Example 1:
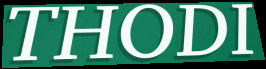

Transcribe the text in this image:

THODI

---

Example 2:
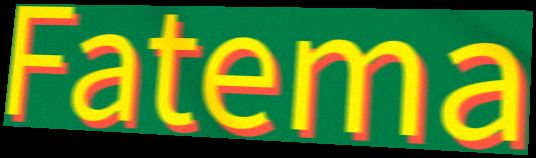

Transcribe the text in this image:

Fatema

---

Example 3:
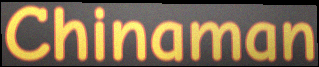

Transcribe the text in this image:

Chinaman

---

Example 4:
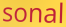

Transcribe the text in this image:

sonal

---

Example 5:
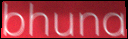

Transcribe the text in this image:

bhuna